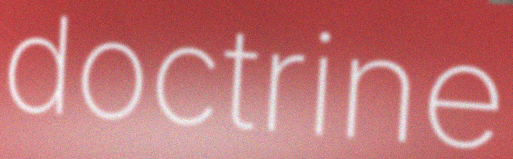
doctrine